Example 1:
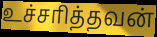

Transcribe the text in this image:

உச்சரித்தவன்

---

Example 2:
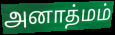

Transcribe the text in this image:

அனாத்மம்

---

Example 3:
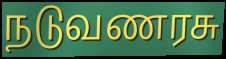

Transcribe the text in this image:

நடுவணரசு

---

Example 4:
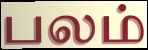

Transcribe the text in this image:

பலம்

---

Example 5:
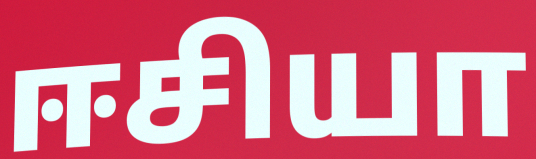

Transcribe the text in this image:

ஈசியா